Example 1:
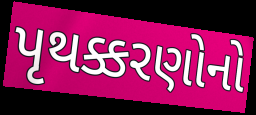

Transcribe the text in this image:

પૃથક્કરણોનો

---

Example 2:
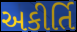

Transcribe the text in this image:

અકીર્તિ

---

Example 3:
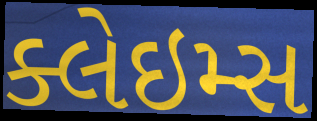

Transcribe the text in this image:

ક્લેઇમ્સ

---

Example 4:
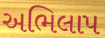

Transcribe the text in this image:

અભિલાપ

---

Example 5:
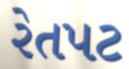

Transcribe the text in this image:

રેતપટ